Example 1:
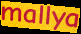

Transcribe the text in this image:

mallya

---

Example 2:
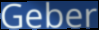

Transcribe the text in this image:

Geber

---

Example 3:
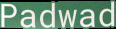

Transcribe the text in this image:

Padwad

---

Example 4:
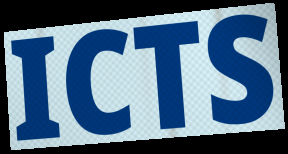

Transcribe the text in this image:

ICTS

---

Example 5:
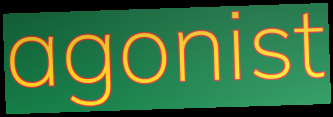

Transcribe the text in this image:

agonist